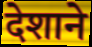
देशाने